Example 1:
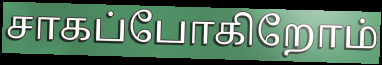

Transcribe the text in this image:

சாகப்போகிறோம்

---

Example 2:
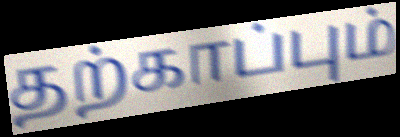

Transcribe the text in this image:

தற்காப்பும்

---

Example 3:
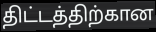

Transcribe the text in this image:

திட்டத்திற்கான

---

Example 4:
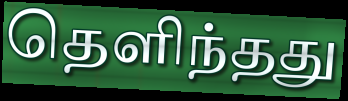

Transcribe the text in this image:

தெளிந்தது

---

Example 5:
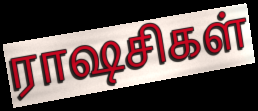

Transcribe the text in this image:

ராஷசிகள்